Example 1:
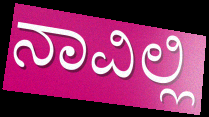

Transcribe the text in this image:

ನಾವಿಲ್ಲಿ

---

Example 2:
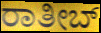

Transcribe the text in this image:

ರಾತೀಬ್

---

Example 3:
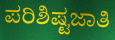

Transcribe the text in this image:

ಪರಿಶಿಷ್ಟಜಾತಿ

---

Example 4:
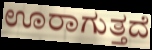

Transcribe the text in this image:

ಊರಾಗುತ್ತದೆ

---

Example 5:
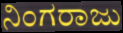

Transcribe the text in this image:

ನಿಂಗರಾಜು